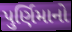
પુર્ણિમાનો